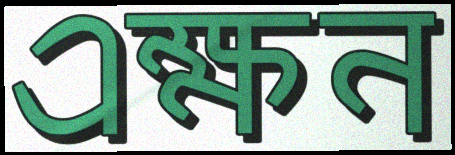
এক্ষন